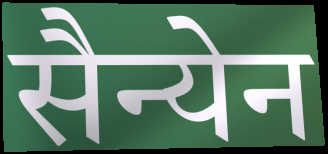
सैन्येन